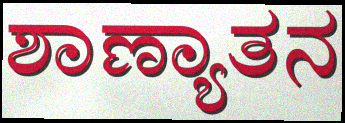
ಶಾಣ್ಯಾತನ